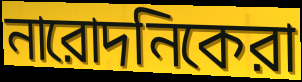
নারোদনিকেরা